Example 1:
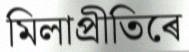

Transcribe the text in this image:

মিলাপ্ৰীতিৰে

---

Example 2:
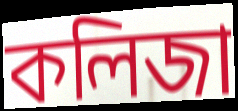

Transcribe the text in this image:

কলিজা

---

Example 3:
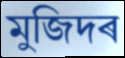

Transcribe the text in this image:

মুজিদৰ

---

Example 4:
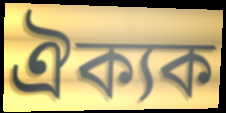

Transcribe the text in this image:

ঐক্যক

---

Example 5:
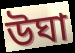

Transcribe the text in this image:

উঘা